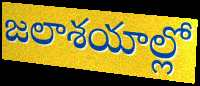
జలాశయాల్లో